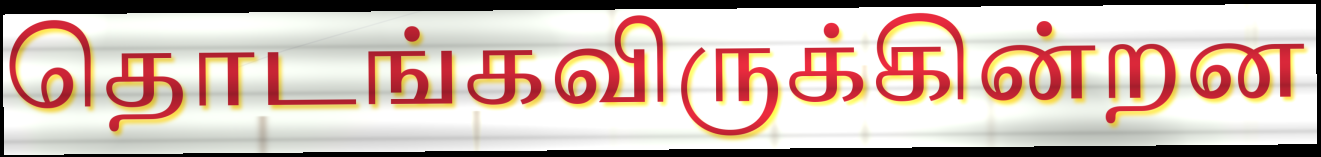
தொடங்கவிருக்கின்றன